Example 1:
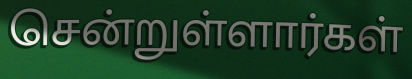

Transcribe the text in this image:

சென்றுள்ளார்கள்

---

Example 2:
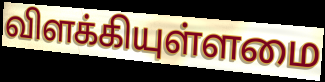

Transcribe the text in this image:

விளக்கியுள்ளமை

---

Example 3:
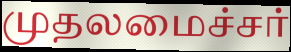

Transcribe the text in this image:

முதலமைச்சர்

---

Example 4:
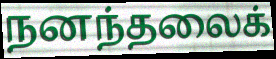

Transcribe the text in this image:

நனந்தலைக்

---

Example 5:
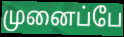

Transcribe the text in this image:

முனைப்பே